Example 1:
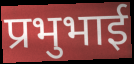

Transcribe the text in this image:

प्रभुभाई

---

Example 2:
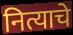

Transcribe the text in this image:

नित्याचे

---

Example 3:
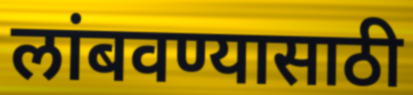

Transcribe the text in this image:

लांबवण्यासाठी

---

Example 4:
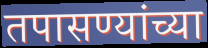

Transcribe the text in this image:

तपासण्यांच्या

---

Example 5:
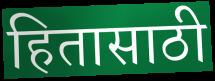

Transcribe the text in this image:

हितासाठी